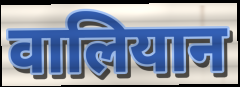
वालियान